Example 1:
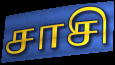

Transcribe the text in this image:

சாசி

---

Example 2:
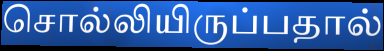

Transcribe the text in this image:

சொல்லியிருப்பதால்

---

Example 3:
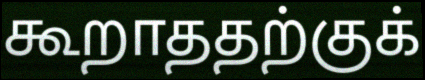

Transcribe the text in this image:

கூறாததற்குக்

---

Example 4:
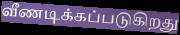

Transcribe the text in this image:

வீணடிக்கப்படுகிறது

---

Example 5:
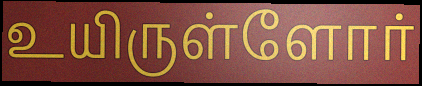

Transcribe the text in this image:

உயிருள்ளோர்